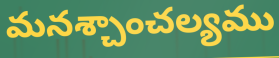
మనశ్చాంచల్యము